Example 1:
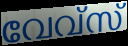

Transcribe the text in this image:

വേവ്സ്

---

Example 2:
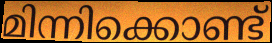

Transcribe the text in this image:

മിന്നിക്കൊണ്ട്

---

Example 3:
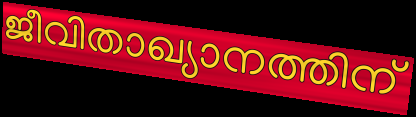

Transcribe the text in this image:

ജീവിതാഖ്യാനത്തിന്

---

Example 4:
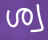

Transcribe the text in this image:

ശ്വ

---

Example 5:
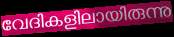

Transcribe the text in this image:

വേദികളിലായിരുന്നു